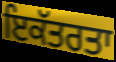
ਇਕੱਤਰਤਾ